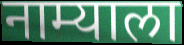
नाम्याला